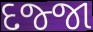
દજ્જા